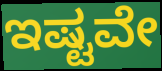
ಇಷ್ಟವೇ